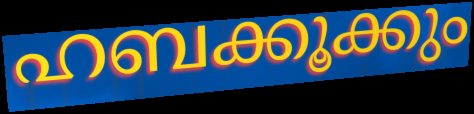
ഹബക്കൂക്കും